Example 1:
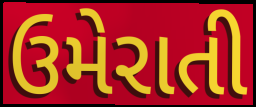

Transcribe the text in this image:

ઉમેરાતી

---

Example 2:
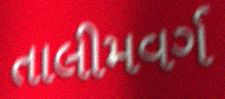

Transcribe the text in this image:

તાલીમવર્ગ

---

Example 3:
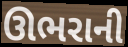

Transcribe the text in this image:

ઊભરાની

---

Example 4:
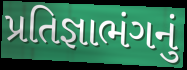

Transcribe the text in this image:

પ્રતિજ્ઞાભંગનું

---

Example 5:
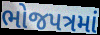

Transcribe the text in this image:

ભોજપત્રમાં